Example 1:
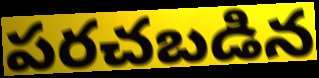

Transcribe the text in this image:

పరచబడిన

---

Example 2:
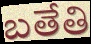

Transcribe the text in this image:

బతేతి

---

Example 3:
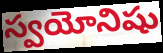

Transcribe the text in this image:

స్వయోనిషు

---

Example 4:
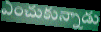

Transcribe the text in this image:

ఎంచుకున్నాడు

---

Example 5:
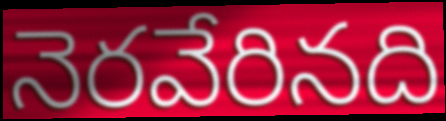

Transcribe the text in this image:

నెరవేరినది